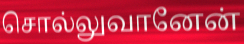
சொல்லுவானேன்